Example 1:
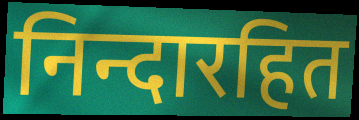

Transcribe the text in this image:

निन्दारहित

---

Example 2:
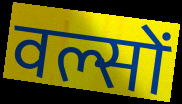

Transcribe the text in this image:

वल्सों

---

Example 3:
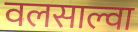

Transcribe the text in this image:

वलसाल्वा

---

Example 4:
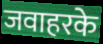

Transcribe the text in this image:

जवाहरके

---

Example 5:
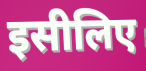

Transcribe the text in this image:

इसीलिए